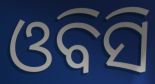
ଓବିସି